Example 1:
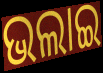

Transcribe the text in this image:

ଭଲାଇ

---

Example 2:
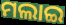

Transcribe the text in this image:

ମଲାଇ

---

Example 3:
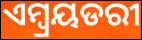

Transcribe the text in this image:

ଏମ୍ବ୍ରୟଡରୀ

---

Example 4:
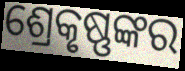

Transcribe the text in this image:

ଶ୍ରେକୃଷ୍ଣଙ୍କର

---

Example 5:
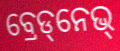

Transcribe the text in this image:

ବ୍ରେଡ୍‌ନେଭ୍